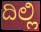
ದಿಲ್ಲಿ